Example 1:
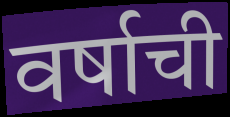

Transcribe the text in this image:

वर्षाची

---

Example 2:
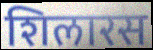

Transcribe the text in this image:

शिलारस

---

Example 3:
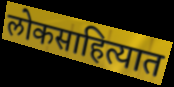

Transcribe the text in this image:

लोकसाहित्यात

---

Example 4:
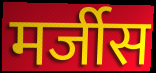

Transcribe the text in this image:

मर्जीस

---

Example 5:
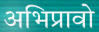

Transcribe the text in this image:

अभिप्रावो